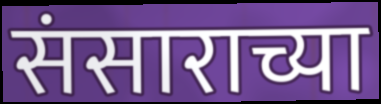
संसाराच्या